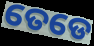
ତେଡେ